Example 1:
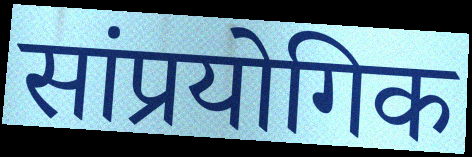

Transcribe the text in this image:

सांप्रयोगिक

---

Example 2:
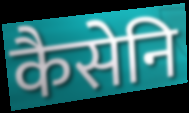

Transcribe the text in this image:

कैसेनि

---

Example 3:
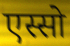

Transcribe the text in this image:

एस्सो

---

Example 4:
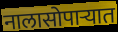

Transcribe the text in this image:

नालासोपाऱ्यात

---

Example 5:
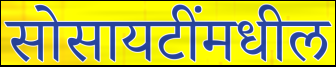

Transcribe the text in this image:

सोसायटींमधील